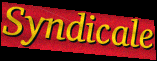
Syndicale